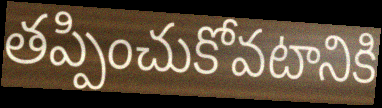
తప్పించుకోవటానికి